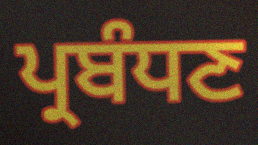
ਪ੍ਰਬੰਧਣ